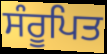
ਸੰਰੂਪਿਤ